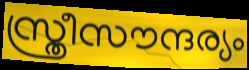
സ്ത്രീസൗന്ദര്യം